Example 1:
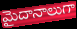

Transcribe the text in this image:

మైదానాలుగా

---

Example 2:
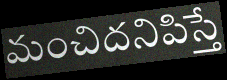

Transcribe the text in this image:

మంచిదనిపిస్తే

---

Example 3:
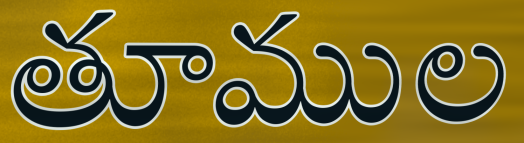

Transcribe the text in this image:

తూముల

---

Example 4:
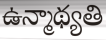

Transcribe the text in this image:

ఉన్మాథ్యతి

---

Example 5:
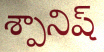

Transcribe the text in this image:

శ్పానిష్